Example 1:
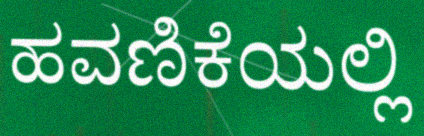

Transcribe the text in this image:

ಹವಣಿಕೆಯಲ್ಲಿ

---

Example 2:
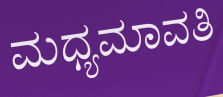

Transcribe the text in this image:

ಮಧ್ಯಮಾವತಿ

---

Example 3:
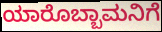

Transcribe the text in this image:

ಯಾರೊಬ್ಬಾಮನಿಗೆ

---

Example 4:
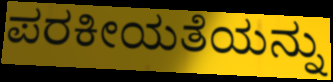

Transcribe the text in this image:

ಪರಕೀಯತೆಯನ್ನು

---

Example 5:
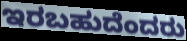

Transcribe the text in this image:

ಇರಬಹುದೆಂದರು